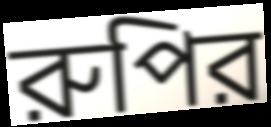
রুপির